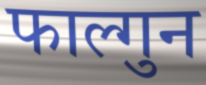
फाल्गुन